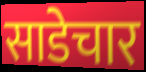
साडेचार